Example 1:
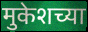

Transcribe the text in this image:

मुकेशच्या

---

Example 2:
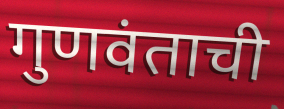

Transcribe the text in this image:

गुणवंताची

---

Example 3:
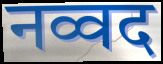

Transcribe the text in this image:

नव्वद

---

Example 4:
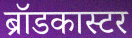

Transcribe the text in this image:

ब्रॉडकास्टर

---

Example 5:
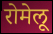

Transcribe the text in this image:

रोमेलू